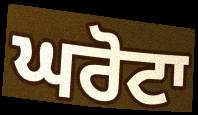
ਘਰੋਟਾ